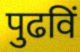
पुढविं